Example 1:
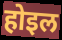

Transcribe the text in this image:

होइल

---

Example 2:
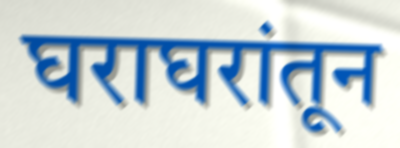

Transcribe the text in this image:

घराघरांतून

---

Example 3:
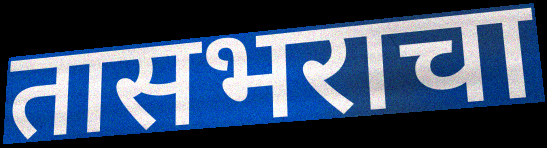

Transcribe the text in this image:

तासभराचा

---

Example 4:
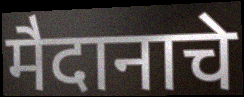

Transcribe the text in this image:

मैदानाचे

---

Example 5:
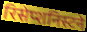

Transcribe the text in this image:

रिसेप्शनिस्टने